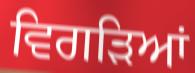
ਵਿਗੜਿਆਂ